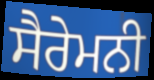
ਸੈਰੇਮਨੀ